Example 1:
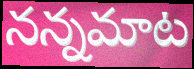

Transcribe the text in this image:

నన్నమాట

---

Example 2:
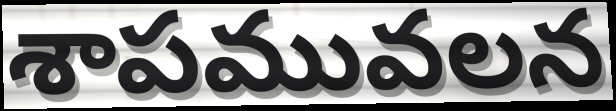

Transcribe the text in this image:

శాపమువలన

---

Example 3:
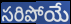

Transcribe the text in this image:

సరిపోయే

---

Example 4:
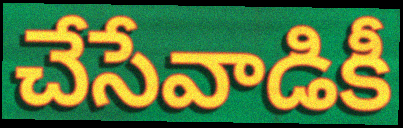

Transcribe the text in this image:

చేసేవాడికీ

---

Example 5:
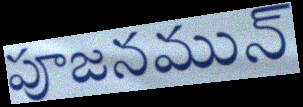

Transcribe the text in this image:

పూజనమున్